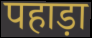
पहाड़ा